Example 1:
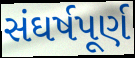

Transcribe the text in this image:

સંઘર્ષપૂર્ણ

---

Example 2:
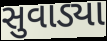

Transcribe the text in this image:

સુવાડ્યા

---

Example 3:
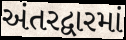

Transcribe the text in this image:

અંતરદ્વારમાં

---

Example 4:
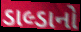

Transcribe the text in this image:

ડાલ્ડાનો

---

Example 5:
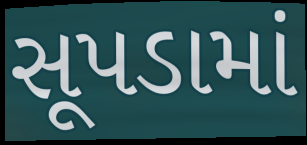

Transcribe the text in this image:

સૂપડામાં